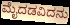
ಮೈದಡವಿದನು